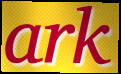
ark